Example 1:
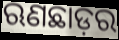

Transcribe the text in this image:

ଋଣଛାଡ଼ର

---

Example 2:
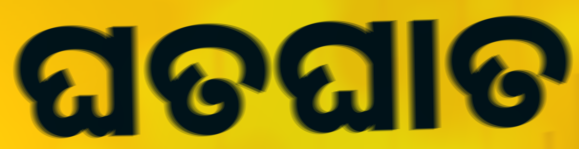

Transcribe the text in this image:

ଘତଘାତ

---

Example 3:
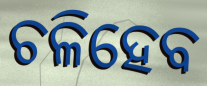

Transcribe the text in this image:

ଚଳିହେବ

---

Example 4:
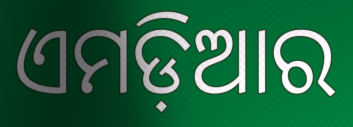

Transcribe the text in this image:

ଏମଡ଼ିଆର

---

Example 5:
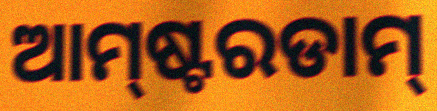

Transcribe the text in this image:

ଆମ୍‍ଷ୍ଟରଡାମ୍